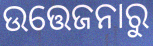
ଉତ୍ତେଜନାରୁ